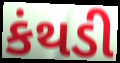
કંથડી